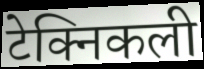
टेक्निकली